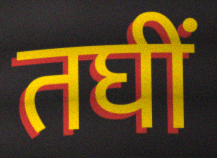
तघीं